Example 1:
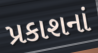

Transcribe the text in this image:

પ્રકાશનાં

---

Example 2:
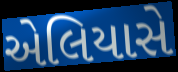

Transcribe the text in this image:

એલિયાસે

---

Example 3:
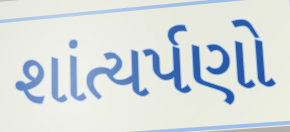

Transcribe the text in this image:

શાંત્યર્પણો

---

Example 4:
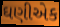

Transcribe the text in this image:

ઘણીએક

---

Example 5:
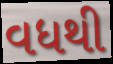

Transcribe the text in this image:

વધથી